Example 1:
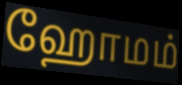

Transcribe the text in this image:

ஹோமம்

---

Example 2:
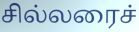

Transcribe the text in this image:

சில்லரைச்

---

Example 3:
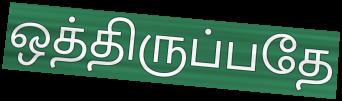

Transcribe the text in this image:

ஒத்திருப்பதே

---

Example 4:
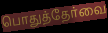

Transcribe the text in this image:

பொதுத்தேர்வை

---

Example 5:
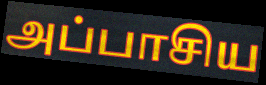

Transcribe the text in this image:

அப்பாசிய